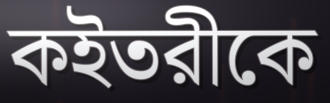
কইতরীকে